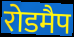
रोडमैप